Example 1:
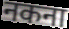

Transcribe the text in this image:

नकना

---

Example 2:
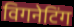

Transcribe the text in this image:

विगनेटिंग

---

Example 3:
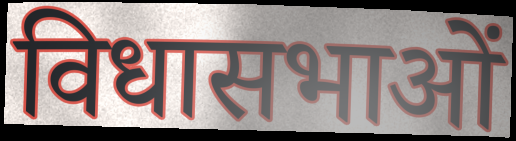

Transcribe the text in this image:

विधासभाओं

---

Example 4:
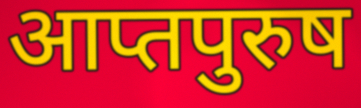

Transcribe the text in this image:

आप्तपुरुष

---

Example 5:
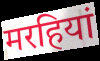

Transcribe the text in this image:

मरहियां